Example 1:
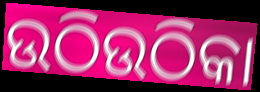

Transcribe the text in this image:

ଉଠିଉଠିକା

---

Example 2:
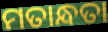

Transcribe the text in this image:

ମତାନ୍ଧତା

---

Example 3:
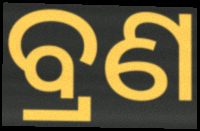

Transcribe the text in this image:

ବ୍ରଣ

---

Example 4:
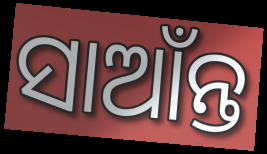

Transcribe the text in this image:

ସାଆଁନ୍ତ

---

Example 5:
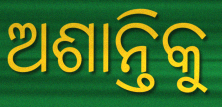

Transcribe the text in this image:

ଅଶାନ୍ତିକୁ